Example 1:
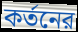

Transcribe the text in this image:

কর্তনের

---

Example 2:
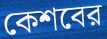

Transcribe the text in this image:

কেশবের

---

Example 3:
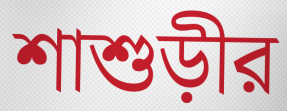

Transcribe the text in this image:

শাশুড়ীর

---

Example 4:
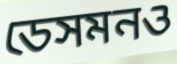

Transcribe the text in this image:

ডেসমনও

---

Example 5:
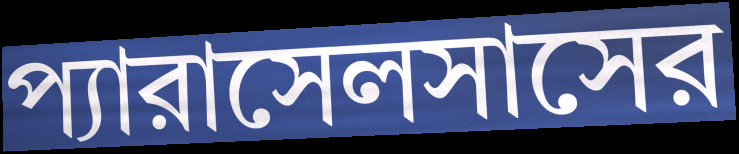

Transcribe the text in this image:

প্যারাসেলসাসের